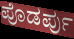
ಪೊಡರ್ಪು